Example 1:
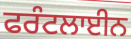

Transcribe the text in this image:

ਫਰੰਟਲਾਈਨ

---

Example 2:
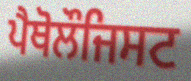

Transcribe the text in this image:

ਪੈਥੋਲੌਜਿਸਟ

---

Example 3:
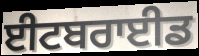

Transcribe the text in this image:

ਈਟਬਰਾਈਡ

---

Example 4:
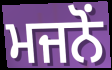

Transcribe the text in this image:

ਮਜਨੋਂ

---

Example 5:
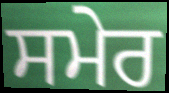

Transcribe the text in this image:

ਸਮੇਰ